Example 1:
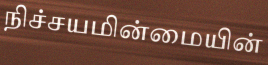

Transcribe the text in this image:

நிச்சயமின்மையின்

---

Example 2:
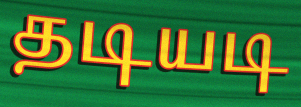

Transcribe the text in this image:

தடியடி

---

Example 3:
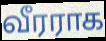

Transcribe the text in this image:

வீரராக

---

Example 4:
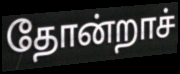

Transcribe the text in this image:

தோன்றாச்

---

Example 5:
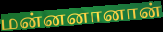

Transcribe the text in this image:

மன்னனானான்